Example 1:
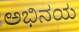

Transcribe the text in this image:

ಅಭಿನಯ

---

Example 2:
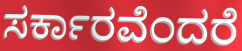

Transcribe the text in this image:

ಸರ್ಕಾರವೆಂದರೆ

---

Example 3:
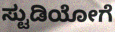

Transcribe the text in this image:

ಸ್ಟುಡಿಯೋಗೆ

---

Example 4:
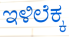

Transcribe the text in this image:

ಇಳಿಲೆಕ್ಕ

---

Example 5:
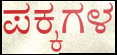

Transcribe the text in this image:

ಪಕ್ಕಗಳ